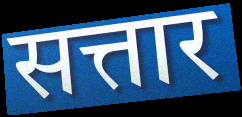
सत्तार